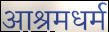
आश्रमधर्म